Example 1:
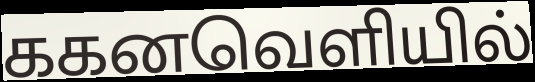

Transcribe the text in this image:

ககனவெளியில்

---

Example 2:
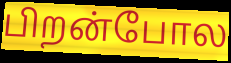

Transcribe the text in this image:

பிறன்போல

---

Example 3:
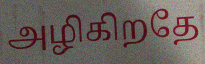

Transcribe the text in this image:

அழிகிறதே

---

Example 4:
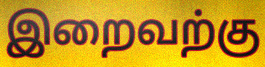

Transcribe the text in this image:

இறைவற்கு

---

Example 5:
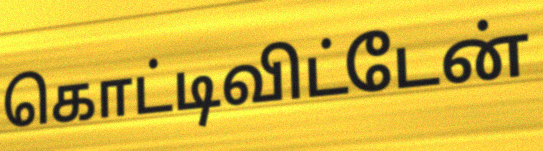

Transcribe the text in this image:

கொட்டிவிட்டேன்